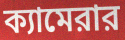
ক্যামেরার